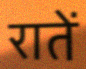
रातें